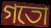
গতো